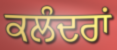
ਕਲੰਦਰਾਂ